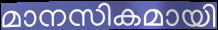
മാനസികമായി